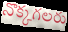
నొక్కగలరు